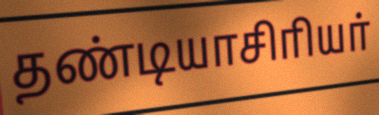
தண்டியாசிரியர்